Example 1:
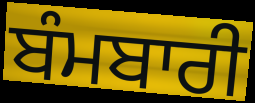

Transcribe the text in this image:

ਬੰਮਬਾਰੀ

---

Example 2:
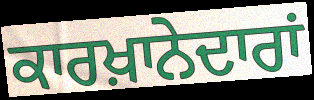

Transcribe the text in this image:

ਕਾਰਖ਼ਾਨੇਦਾਰਾਂ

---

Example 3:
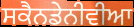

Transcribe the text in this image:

ਸਕੈਨਡੇਨੀਵੀਆ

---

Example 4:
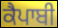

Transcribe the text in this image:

ਕੈਪਾਬੀ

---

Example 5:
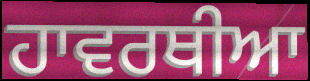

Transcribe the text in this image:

ਹਾਵਰਥੀਆ